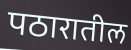
पठारातील